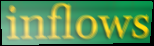
inflows